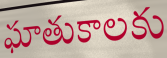
ఘాతుకాలకు